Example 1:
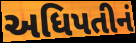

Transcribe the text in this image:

અધિપતીનં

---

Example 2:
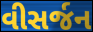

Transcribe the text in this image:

વીસર્જન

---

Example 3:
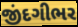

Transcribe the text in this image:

જીંદગીભર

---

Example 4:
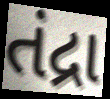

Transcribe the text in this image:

તંદ્રા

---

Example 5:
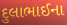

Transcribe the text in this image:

દુલાભાઈના